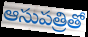
ఆసుపత్రితో